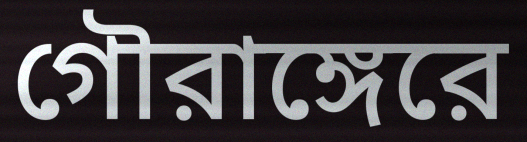
গৌরাঙ্গেরে